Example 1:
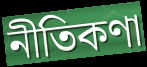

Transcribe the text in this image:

নীতিকণা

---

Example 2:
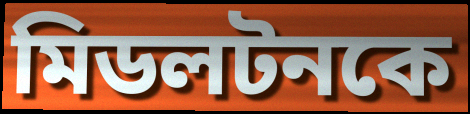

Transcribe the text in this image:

মিডলটনকে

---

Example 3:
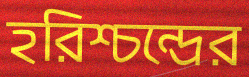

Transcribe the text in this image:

হরিশ্চন্দ্রের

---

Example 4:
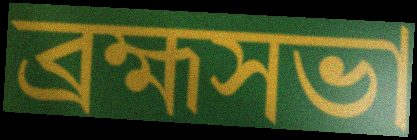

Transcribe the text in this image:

ব্রহ্মসভা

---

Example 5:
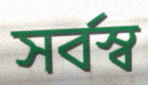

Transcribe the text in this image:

সর্বস্ব